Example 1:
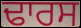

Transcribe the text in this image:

ਢਾਰਸ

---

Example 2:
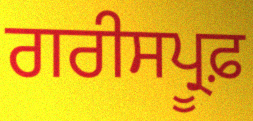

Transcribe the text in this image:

ਗਰੀਸਪ੍ਰੂਫ਼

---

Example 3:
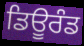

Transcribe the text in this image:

ਡਿਊਰੰਡ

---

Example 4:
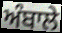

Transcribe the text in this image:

ਅੰਬਾਲੇ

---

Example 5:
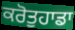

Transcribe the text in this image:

ਕਰੋਤੁਹਾਡਾ